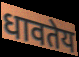
धावतेय